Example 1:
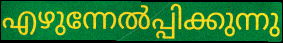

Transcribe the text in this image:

എഴുന്നേൽപ്പിക്കുന്നു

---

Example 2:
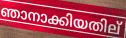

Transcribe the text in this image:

ഞാനാക്കിയതില്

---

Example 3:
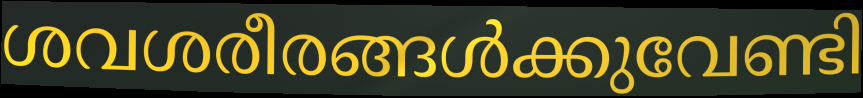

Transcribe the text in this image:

ശവശരീരങ്ങൾക്കുവേണ്ടി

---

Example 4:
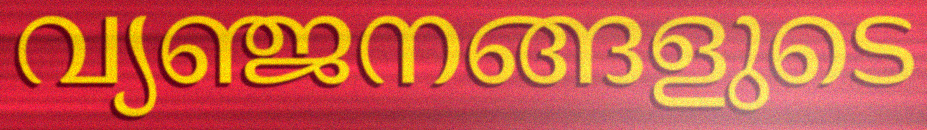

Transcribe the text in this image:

വ്യഞ്ജനങ്ങളുടെ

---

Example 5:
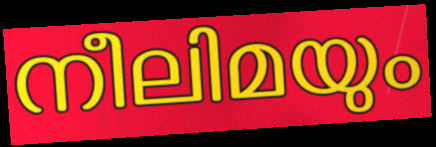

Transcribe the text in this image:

നീലിമയും